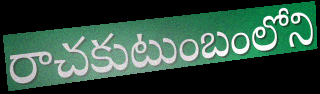
రాచకుటుంబంలోని